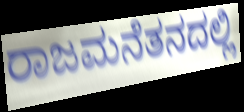
ರಾಜಮನೆತನದಲ್ಲಿ